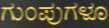
ಗುಂಪುಗಳೂ